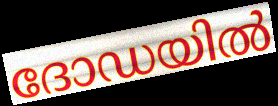
ദോഡയിൽ